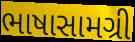
ભાષાસામગ્રી